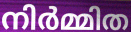
നിർമ്മിത